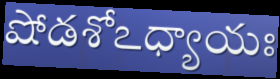
షోడశోఽధ్యాయః